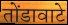
तोंडावाटे